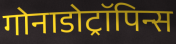
गोनाडोट्रॉपिन्स